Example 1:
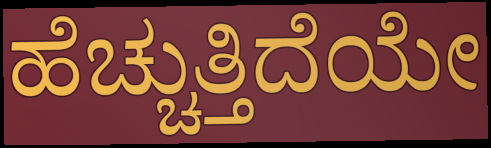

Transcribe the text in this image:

ಹೆಚ್ಚುತ್ತಿದೆಯೇ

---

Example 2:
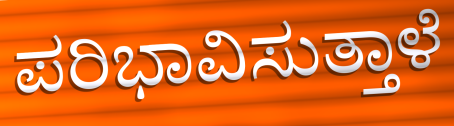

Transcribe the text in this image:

ಪರಿಭಾವಿಸುತ್ತಾಳೆ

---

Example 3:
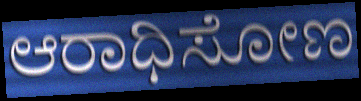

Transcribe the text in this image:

ಆರಾಧಿಸೋಣ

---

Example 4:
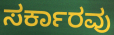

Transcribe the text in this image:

ಸರ್ಕಾರವು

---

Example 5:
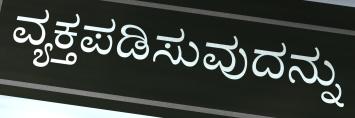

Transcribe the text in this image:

ವ್ಯಕ್ತಪಡಿಸುವುದನ್ನು